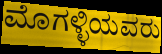
ಮೊಗಳ್ಳಿಯವರು